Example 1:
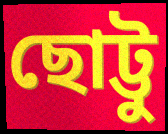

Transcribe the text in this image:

ছোট্টু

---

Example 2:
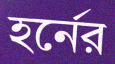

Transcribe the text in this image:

হর্নের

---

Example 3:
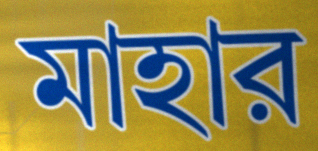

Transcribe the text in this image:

মাহার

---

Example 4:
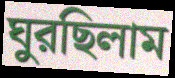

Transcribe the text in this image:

ঘুরছিলাম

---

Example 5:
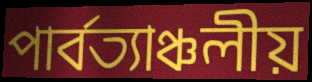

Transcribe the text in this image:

পার্বত্যাঞ্চলীয়